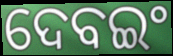
ଦେବଇଂ